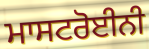
ਮਾਸਟਰੋਈਨੀ